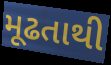
મૂઢતાથી